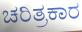
ಚರಿತ್ರಕಾರ